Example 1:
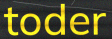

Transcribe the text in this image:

toder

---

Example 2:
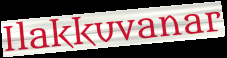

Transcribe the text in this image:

Ilakkuvanar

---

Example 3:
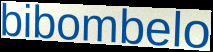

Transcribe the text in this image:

bibombelo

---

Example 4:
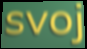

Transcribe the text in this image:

svoj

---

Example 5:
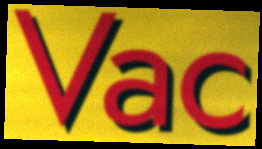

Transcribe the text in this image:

Vac